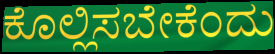
ಕೊಲ್ಲಿಸಬೇಕೆಂದು